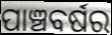
ପାଞ୍ଚବର୍ଷର